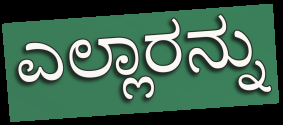
ಎಲ್ಲಾರನ್ನು